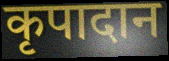
कृपादान